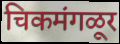
चिकमंगळूर